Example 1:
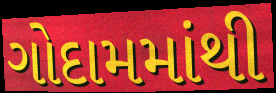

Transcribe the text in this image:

ગોદામમાંથી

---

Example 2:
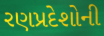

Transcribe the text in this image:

રણપ્રદેશોની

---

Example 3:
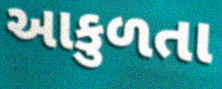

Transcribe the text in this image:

આકુળતા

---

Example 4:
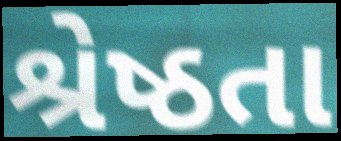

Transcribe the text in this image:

શ્રેષ્ઠતા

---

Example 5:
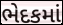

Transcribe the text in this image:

ભેદકમાં